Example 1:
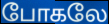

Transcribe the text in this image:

போகலே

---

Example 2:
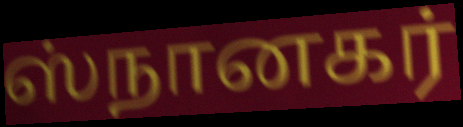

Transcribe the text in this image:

ஸ்நானகர்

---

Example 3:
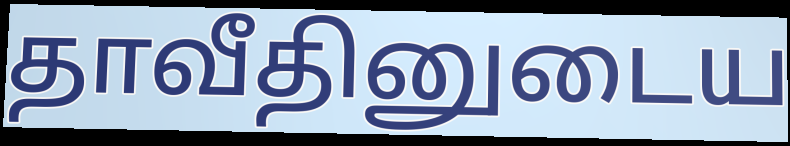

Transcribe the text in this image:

தாவீதினுடைய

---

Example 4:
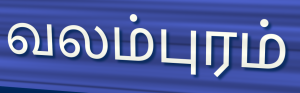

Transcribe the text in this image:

வலம்புரம்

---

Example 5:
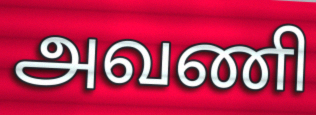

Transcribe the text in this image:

அவணி